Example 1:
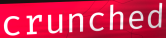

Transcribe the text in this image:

crunched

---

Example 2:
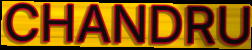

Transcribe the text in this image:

CHANDRU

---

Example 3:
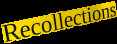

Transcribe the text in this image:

Recollections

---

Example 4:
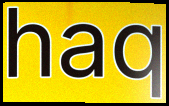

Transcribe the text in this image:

haq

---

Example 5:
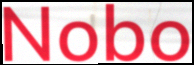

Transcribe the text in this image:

Nobo